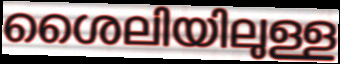
ശൈലിയിലുള്ള